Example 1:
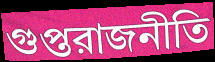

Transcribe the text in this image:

গুপ্তরাজনীতি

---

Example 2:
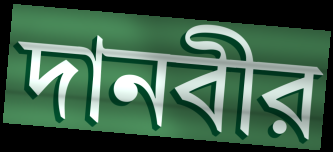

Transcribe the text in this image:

দানবীর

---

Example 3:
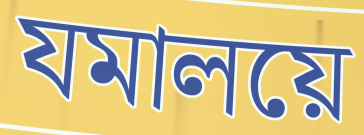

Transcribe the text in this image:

যমালয়ে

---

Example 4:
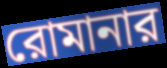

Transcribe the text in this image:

রোমানার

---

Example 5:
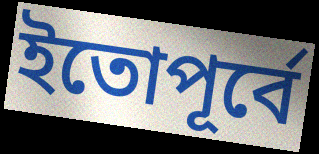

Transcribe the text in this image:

ইতোপূর্বে